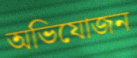
অভিযোজন